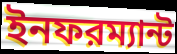
ইনফরম্যান্ট